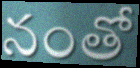
నంతో